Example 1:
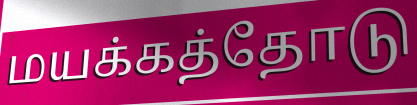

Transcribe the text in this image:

மயக்கத்தோடு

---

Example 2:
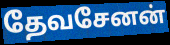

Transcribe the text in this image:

தேவசேனன்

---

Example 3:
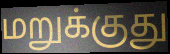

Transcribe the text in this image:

மறுக்குது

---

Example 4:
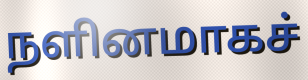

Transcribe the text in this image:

நளினமாகச்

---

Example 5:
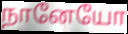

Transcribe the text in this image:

நானேயோ